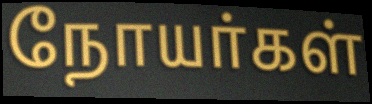
நோயர்கள்